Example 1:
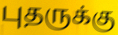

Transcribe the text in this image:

புதருக்கு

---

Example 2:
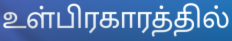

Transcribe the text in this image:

உள்பிரகாரத்தில்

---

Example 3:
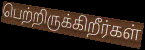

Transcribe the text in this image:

பெற்றிருக்கிறீர்கள்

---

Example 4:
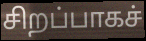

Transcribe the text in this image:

சிறப்பாகச்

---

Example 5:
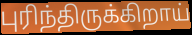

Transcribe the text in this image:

புரிந்திருக்கிறாய்